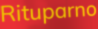
Rituparno